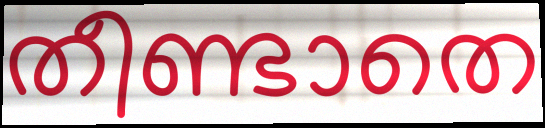
തീണ്ടാതെ